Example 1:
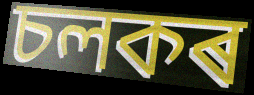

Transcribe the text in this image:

চলকৰ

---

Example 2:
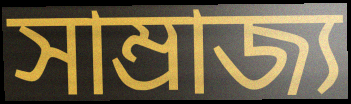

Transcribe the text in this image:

সাম্ৰাজ্য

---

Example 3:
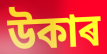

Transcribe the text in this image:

উকাৰ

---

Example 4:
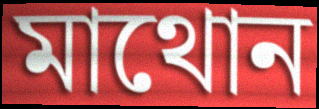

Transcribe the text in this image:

মাথোন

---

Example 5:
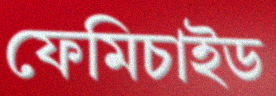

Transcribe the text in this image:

ফেমিচাইড